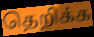
தெறிக்க